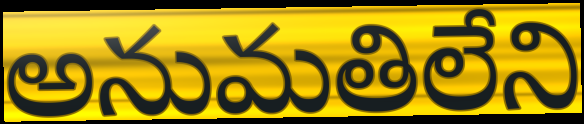
అనుమతిలేని